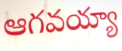
ఆగవయ్యా